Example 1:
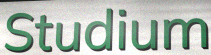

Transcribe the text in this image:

Studium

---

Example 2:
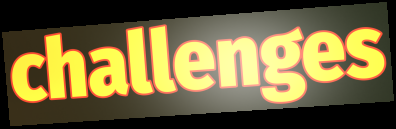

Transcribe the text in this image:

challenges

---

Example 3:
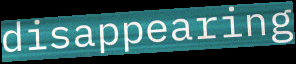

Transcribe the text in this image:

disappearing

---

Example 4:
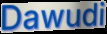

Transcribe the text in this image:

Dawudi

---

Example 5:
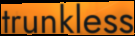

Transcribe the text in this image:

trunkless